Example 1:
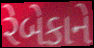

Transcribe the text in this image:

રેબેકાને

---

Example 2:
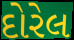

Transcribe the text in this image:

દોરેલ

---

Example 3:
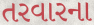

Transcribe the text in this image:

તરવારના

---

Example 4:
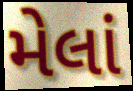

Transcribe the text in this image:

મેલાં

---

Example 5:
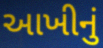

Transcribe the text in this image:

આખીનું